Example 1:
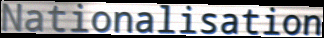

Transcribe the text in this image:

Nationalisation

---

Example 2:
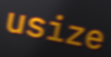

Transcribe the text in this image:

usize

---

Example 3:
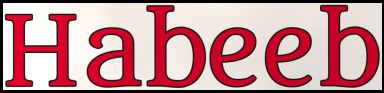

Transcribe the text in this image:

Habeeb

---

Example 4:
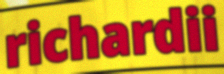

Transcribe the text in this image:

richardii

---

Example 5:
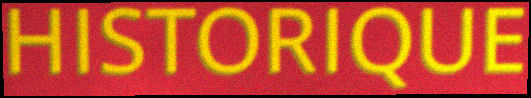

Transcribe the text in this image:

HISTORIQUE